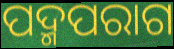
ପଦ୍ମପରାଗ